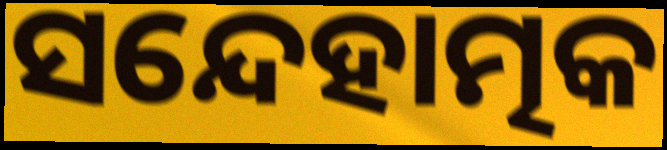
ସନ୍ଦେହାତ୍ମକ